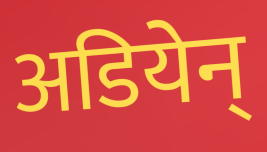
अडियेन्